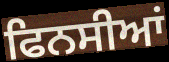
ਫਿਨਸੀਆਂ